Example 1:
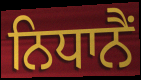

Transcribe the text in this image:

ਨਿਧਾਨੈਂ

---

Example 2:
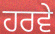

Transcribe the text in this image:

ਹਰਵੇ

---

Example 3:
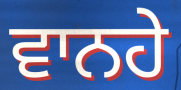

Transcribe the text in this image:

ਵਾਨਹੇ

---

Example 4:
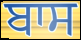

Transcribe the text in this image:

ਬਾਸ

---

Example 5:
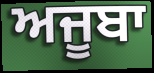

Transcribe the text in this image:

ਅਜੂਬਾ